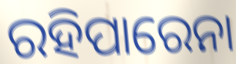
ରହିପାରେନା